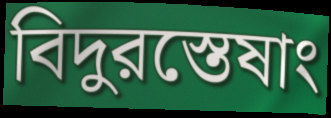
বিদুরস্তেষাং